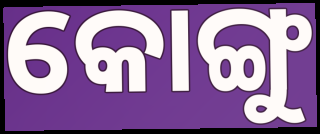
କୋଙ୍ଗୁ